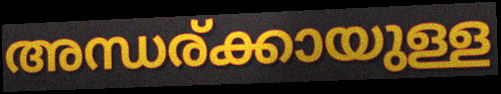
അന്ധര്ക്കായുള്ള